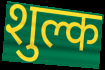
शुल्‍क